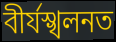
বীৰ্যস্খলনত